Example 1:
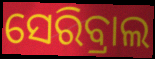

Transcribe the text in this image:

ସେରିବ୍ରାଲ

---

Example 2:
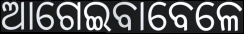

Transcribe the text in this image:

ଆଗେଇବାବେଳେ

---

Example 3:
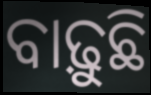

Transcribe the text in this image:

ବାଢ଼ୁଛି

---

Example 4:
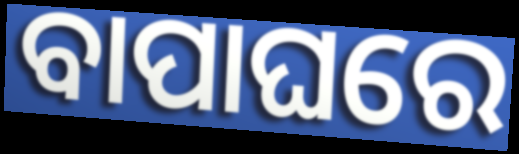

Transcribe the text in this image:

ବାପାଘରେ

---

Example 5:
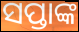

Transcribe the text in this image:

ସପ୍ତାଙ୍କ